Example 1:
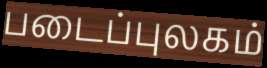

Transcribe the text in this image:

படைப்புலகம்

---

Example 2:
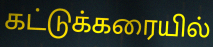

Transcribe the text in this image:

கட்டுக்கரையில்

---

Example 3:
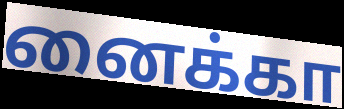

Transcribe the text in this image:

னைக்கா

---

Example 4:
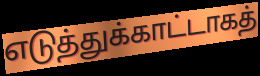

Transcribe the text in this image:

எடுத்துக்காட்டாகத்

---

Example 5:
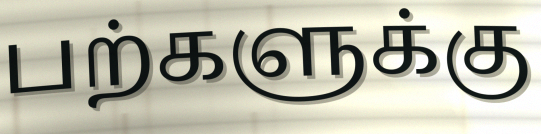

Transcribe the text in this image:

பற்களுக்கு